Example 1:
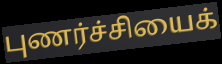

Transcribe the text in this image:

புணர்ச்சியைக்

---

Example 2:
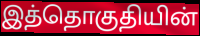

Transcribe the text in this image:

இத்தொகுதியின்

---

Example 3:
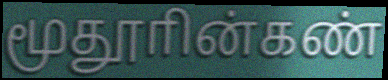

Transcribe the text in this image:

மூதூரின்கண்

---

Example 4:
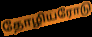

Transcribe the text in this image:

தோழியரோடு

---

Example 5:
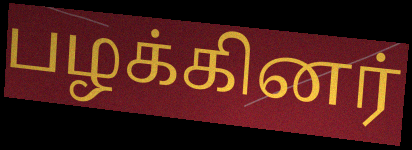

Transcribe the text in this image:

பழக்கினர்